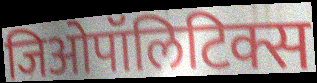
जिओपॉलिटिक्स